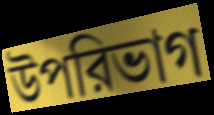
উপরিভাগ